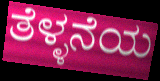
ತೆಳ್ಳನೆಯ